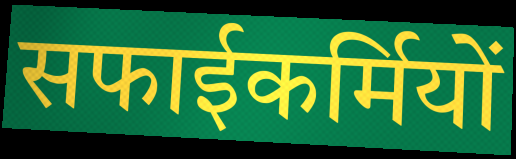
सफाईकर्मियों